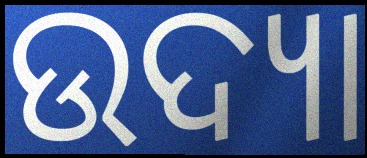
ଉଦ୍ୟା